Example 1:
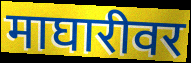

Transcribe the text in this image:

माघारीवर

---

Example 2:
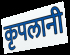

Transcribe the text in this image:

कृपलानी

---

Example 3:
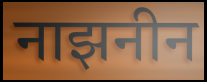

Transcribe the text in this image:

नाझनीन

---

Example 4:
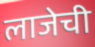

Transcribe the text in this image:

लाजेची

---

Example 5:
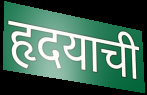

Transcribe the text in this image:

हृदयाची